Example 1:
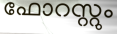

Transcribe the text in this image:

ഫോറസ്റ്റും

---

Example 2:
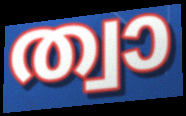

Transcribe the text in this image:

ത്വാ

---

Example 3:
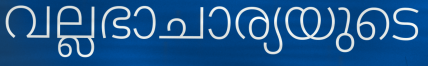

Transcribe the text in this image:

വല്ലഭാചാര്യയുടെ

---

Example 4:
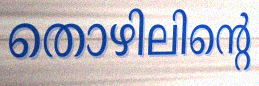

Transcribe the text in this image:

തൊഴിലിന്റെ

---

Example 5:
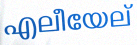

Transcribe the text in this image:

എലീയേല്